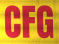
CFG